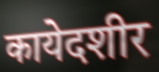
कायेदशीर